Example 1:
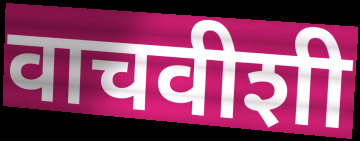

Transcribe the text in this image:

वाचवीशी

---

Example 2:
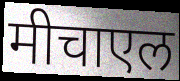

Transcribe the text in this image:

मीचाएल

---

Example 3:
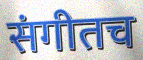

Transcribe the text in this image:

संगीतच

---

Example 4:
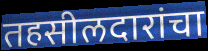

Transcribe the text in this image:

तहसीलदारांचा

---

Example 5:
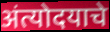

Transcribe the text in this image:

अंत्योदयाचे